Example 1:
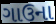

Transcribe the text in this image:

ગાઉના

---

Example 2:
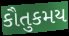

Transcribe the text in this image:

કૌતુકમય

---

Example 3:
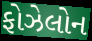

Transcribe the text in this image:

ફોઝેલોન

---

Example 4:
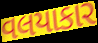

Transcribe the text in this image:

વલયાકાર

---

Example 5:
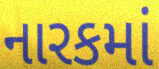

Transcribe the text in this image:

નારકમાં